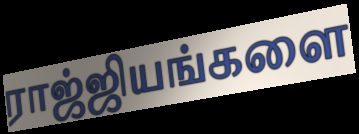
ராஜ்ஜியங்களை